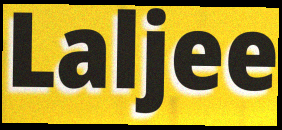
Laljee